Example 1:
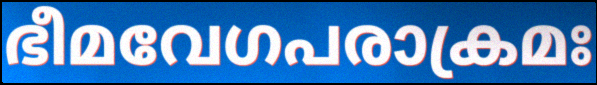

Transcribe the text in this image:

ഭീമവേഗപരാക്രമഃ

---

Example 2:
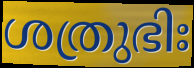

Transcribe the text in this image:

ശത്രുഭിഃ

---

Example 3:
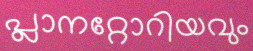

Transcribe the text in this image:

പ്ലാനറ്റോറിയവും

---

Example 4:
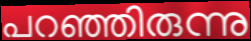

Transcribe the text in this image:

പറഞ്ഞിരുന്നു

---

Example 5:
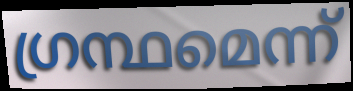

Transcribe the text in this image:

ഗ്രന്ഥമെന്ന്